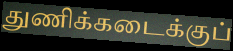
துணிக்கடைக்குப்